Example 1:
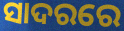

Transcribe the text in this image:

ସାଦରରେ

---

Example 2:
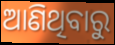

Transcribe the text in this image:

ଆଣିଥିବାରୁ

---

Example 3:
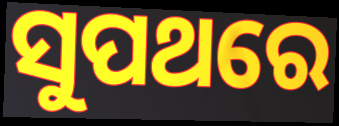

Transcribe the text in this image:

ସୁପଥରେ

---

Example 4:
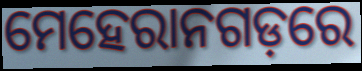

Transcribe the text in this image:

ମେହେରାନଗଡ଼ରେ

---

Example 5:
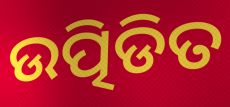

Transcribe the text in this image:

ଉତ୍ପିଡିତ